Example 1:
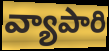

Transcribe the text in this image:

వ్యాపారి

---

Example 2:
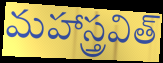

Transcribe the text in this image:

మహాస్త్రవిత్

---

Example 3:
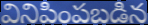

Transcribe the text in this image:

వినిపింపబడిన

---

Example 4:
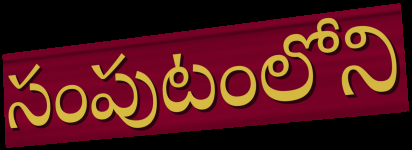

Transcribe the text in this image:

సంపుటంలోని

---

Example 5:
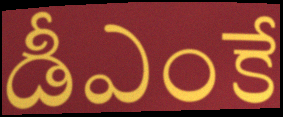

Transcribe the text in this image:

డీఎంకే